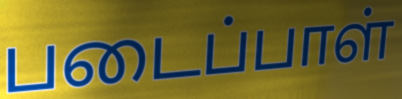
படைப்பாள்